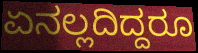
ಏನಲ್ಲದಿದ್ದರೂ